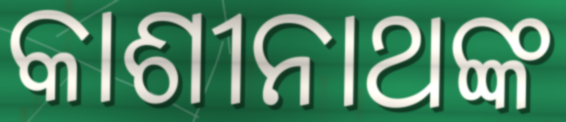
କାଶୀନାଥଙ୍କ